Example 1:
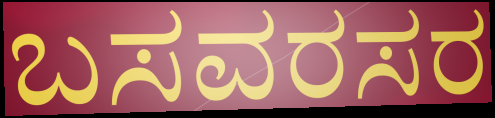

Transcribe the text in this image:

ಬಸವರಸರ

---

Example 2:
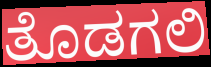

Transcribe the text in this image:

ತೊಡಗಲಿ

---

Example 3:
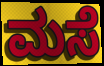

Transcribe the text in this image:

ಮಸೆ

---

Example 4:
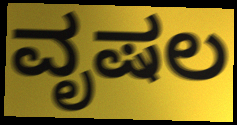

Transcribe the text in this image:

ವೃಷಲ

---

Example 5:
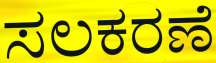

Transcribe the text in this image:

ಸಲಕರಣೆ